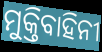
ମୁକ୍ତିବାହିନୀ